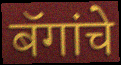
बॅगांचे